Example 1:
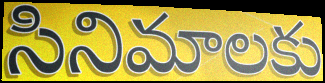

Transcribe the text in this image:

సినిమాలకు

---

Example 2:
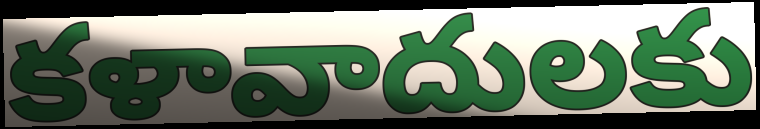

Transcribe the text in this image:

కళావాదులకు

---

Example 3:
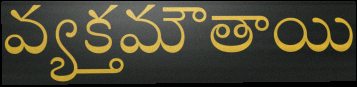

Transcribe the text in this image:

వ్యక్తమౌతాయి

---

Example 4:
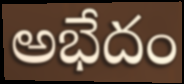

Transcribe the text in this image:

అభేదం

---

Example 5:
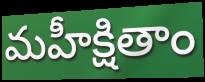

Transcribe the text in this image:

మహీక్షితాం